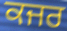
ਕਜਰ